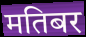
मतिबर